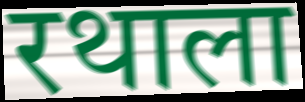
रथाला